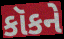
કૉકને